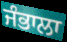
ਜੰਭਾਲਾ